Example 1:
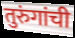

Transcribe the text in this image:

तुरुंगांची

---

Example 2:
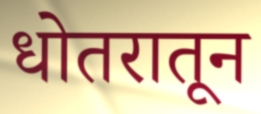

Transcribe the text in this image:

धोतरातून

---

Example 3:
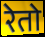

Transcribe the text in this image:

रेतो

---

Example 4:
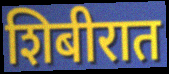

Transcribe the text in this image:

शिबीरात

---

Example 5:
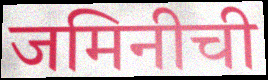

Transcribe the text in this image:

जमिनीची